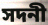
সদনী